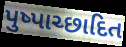
પુષ્પાચ્છાદિત